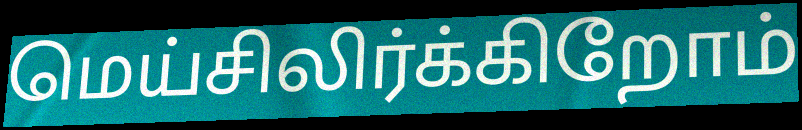
மெய்சிலிர்க்கிறோம்